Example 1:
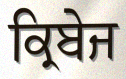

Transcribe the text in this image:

ਕ੍ਰਿਬੇਜ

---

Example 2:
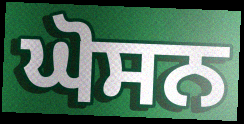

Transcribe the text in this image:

ਘੋਸਨ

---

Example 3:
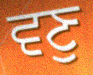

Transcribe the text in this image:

ਵਣੁ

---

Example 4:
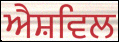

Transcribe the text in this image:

ਐਸ਼ਵਿਲ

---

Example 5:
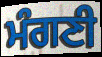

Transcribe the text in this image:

ਮੰਗਣੀ